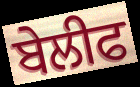
ਬੇਲੀਫ